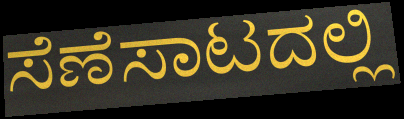
ಸೆಣೆಸಾಟದಲ್ಲಿ